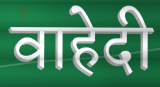
वाहेदी